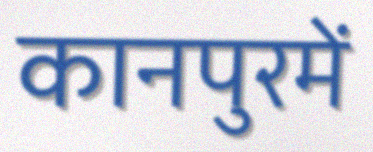
कानपुरमें